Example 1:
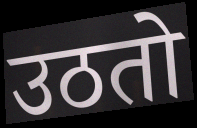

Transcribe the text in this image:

उठतो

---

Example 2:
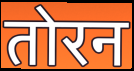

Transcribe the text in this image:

तोरन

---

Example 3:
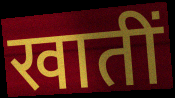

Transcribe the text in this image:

खातीं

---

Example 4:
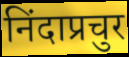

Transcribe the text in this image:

निंदाप्रचुर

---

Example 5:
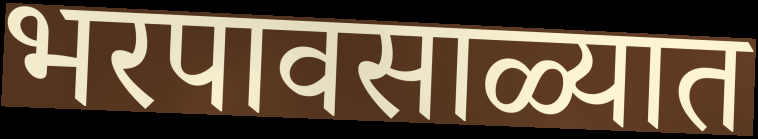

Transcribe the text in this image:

भरपावसाळ्यात